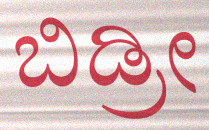
ಬಿಡ್ರೀ